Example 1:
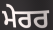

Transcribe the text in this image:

ਮੇਰਰ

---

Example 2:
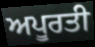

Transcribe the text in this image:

ਅਪੂਰਤੀ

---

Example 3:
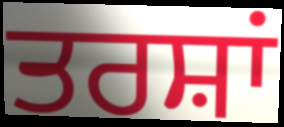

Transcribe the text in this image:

ਤਰਸ਼ਾਂ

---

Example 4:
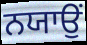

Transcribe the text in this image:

ਨਯਾਉਂ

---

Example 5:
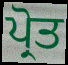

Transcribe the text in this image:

ਪ੍ਰੋਤ